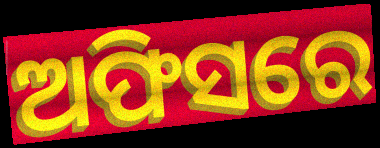
ଅଫିସରେ